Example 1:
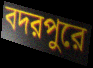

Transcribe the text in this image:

বদরপুরে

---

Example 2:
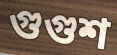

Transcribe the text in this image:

গুগুশ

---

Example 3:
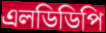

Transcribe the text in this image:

এলডিডিপি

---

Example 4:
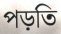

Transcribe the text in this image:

পড়তি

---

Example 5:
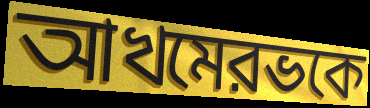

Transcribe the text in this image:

আখমেরভকে